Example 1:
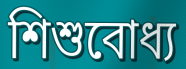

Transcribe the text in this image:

শিশুবোধ্য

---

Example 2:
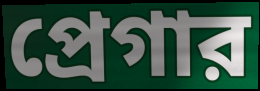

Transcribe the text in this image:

প্রেগার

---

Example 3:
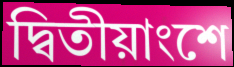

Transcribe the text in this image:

দ্বিতীয়াংশে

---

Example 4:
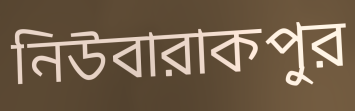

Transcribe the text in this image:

নিউবারাকপুর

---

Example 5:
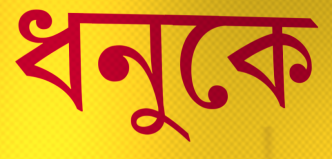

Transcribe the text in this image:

ধনুকে